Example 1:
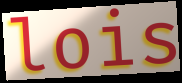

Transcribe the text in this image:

lois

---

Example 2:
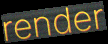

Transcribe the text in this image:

render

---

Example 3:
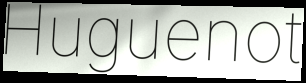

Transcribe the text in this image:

Huguenot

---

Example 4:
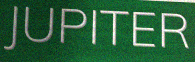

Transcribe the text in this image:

JUPITER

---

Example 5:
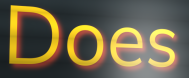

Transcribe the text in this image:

Does